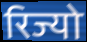
रिज्यो